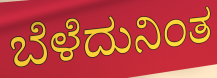
ಬೆಳೆದುನಿಂತ